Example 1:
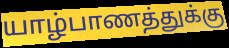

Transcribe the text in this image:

யாழ்பாணத்துக்கு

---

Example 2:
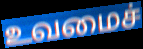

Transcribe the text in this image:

உவமைச்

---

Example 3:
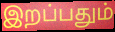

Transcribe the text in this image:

இறப்பதும்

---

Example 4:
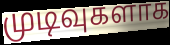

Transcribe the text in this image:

முடிவுகளாக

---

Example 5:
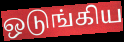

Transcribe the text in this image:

ஒடுங்கிய